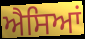
ਐਸਿਆਂ